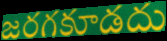
జరగకూడదు